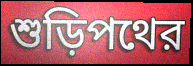
শুড়িপথের